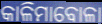
କାଳିମାବୋଳା